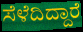
ಸೆಳೆದಿದ್ದಾರೆ